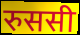
रुससी